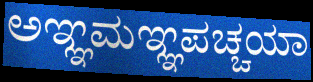
ಅಞ್ಞಮಞ್ಞಪಚ್ಚಯಾ